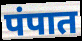
पंपात